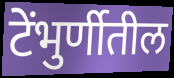
टेंभुर्णीतील